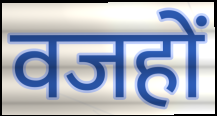
वजहों